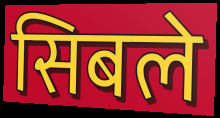
सिबले